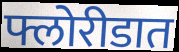
फ्लोरीडात